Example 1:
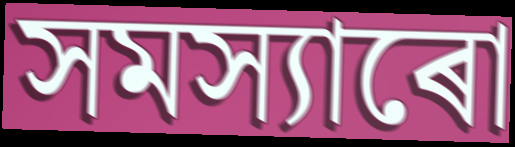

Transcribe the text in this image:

সমস্যাৰো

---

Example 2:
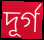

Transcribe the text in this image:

দূৰ্গ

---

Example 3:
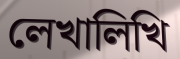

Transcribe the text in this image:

লেখালিখি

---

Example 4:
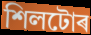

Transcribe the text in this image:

শিলটোৰ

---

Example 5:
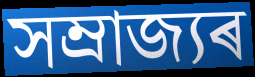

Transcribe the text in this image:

সম্ৰাজ্যৰ